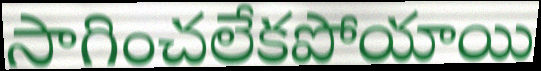
సాగించలేకపోయాయి